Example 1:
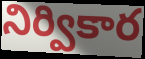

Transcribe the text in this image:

నిర్వికార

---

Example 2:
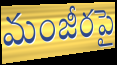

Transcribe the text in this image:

మంజీరపై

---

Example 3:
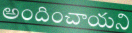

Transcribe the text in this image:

అందించాయని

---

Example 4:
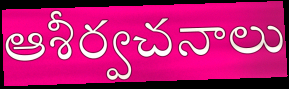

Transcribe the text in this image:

ఆశీర్వచనాలు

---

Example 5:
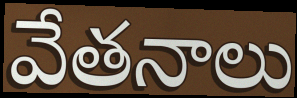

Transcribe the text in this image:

వేతనాలు